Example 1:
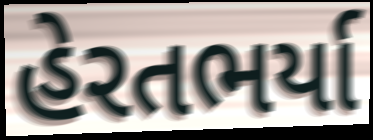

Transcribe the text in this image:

હેરતભર્યા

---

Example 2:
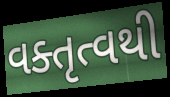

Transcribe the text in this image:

વક્તૃત્વથી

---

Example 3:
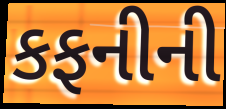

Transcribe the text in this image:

કફનીની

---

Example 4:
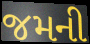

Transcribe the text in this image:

જમની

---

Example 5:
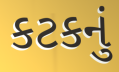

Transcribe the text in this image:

કટકનું